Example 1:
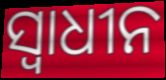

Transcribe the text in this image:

ସ୍ଵାଧୀନ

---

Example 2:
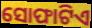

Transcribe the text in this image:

ସୋଫାଟିଏ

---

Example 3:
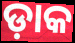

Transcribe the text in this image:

ଡ଼ାକ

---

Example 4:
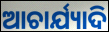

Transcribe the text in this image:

ଆଚାର୍ଯ୍ୟାଦି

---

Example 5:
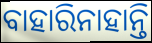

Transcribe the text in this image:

ବାହାରିନାହାନ୍ତି